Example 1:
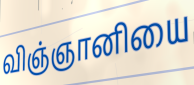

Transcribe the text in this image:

விஞ்ஞானியை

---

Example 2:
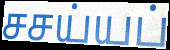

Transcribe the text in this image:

சசய்யப்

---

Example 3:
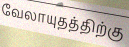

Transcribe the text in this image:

வேலாயுதத்திற்கு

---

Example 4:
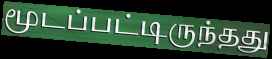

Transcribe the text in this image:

மூடப்பட்டிருந்தது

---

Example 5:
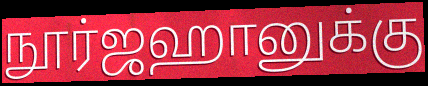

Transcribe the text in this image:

நூர்ஜஹானுக்கு